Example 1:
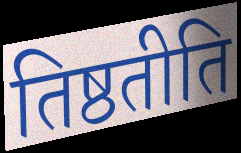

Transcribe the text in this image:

तिष्ठतीति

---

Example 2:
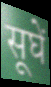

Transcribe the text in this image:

सूघें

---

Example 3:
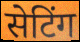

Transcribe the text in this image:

सेटिंग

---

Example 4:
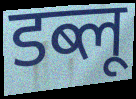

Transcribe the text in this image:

डब्लू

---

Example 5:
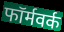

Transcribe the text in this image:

फॉर्मवर्क